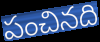
పంచినది